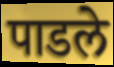
पाडले